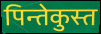
पिन्तेकुस्त